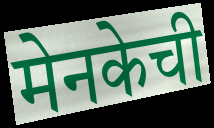
मेनकेची